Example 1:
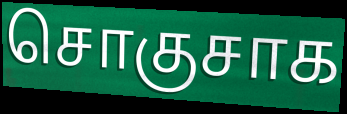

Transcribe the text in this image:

சொகுசாக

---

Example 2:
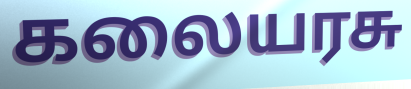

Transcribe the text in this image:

கலையரசு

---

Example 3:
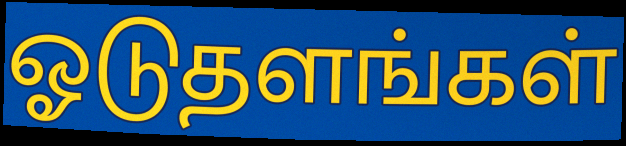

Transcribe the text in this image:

ஓடுதளங்கள்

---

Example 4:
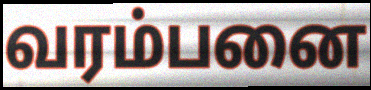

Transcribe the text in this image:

வரம்பனை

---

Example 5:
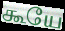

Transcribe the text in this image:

கூயே